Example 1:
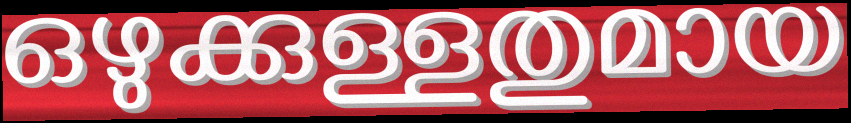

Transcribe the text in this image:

ഒഴുക്കുള്ളതുമായ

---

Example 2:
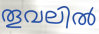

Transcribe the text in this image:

തൂവലിൽ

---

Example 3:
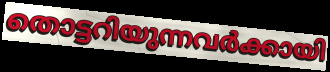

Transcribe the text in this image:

തൊട്ടറിയുന്നവർക്കായി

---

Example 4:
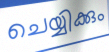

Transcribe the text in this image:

ചെയ്യിക്കും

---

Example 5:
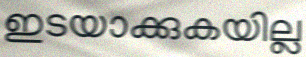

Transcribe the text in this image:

ഇടയാക്കുകയില്ല